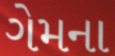
ગેમના